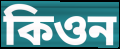
কিওন